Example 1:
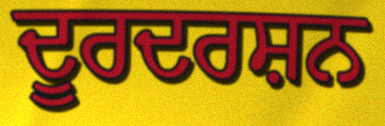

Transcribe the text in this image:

ਦੂਰਦਰਸ਼ਨ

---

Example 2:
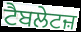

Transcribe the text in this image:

ਟੈਬਲੇਟਜ਼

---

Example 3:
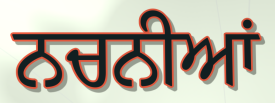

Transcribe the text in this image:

ਨਚਨੀਆਂ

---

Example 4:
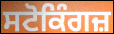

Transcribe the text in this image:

ਸਟੋਕਿੰਗਜ਼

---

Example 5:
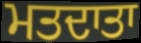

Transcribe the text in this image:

ਮਤਦਾਤਾ